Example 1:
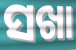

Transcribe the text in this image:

ସଖା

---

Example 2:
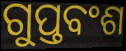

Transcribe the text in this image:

ଗୁପ୍ତବଂଶ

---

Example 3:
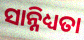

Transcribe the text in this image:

ସାନ୍ନିଧ୍ୟତା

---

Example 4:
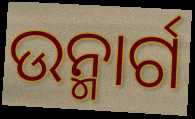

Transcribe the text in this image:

ଉନ୍ମାର୍ଗ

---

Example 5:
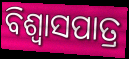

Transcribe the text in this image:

ବିଶ୍ୱାସପାତ୍ର